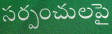
సర్పంచులపై